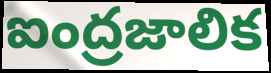
ఐంద్రజాలిక